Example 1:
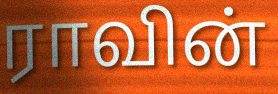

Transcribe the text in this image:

ராவின்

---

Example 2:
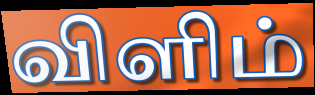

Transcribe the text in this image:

விளிம்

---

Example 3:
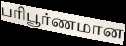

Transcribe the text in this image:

பரிபூர்ணமான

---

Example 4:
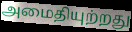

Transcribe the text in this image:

அமைதியுற்றது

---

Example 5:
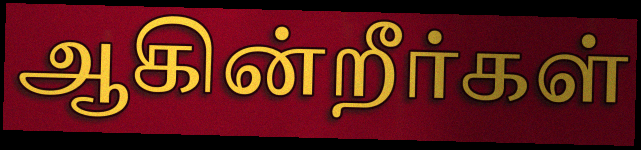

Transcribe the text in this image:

ஆகின்றீர்கள்